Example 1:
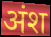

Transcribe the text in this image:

अंश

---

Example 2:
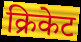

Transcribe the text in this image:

क्रिकेट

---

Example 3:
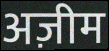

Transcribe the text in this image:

अज़ीम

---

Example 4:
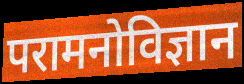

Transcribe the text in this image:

परामनोविज्ञान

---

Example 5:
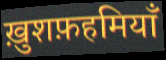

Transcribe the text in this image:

ख़ुशफ़हमियाँ